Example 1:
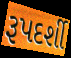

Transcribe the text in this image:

રૂપદર્શી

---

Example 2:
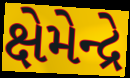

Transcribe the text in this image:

ક્ષેમેન્દ્રે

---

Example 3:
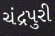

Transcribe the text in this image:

ચંદ્રપુરી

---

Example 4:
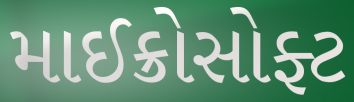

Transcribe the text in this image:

માઈક્રોસોફ્ટ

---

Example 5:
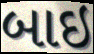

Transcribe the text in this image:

બાઇ